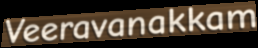
Veeravanakkam